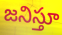
జనిస్తూ